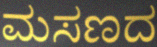
ಮಸಣದ